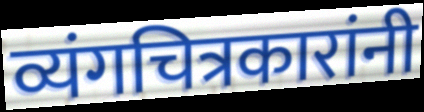
व्यंगचित्रकारांनी